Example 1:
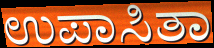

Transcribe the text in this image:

ಉಪಾಸಿತಾ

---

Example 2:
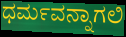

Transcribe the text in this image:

ಧರ್ಮವನ್ನಾಗಲಿ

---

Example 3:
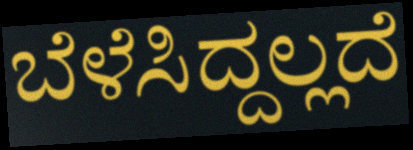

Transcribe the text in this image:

ಬೆಳೆಸಿದ್ದಲ್ಲದೆ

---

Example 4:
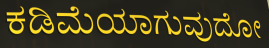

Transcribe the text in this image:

ಕಡಿಮೆಯಾಗುವುದೋ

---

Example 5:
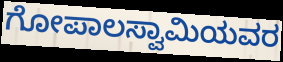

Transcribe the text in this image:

ಗೋಪಾಲಸ್ವಾಮಿಯವರ